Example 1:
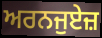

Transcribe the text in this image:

ਅਰਨਜੁਏਜ਼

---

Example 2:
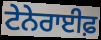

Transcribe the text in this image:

ਟੇਨੇਰਾਈਫ਼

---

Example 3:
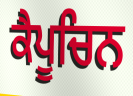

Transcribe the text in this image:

ਕੈਪੂਚਿਨ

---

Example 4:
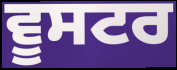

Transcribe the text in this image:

ਵੂਸਟਰ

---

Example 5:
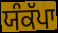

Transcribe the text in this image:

ਯੰਕੱਪਾ